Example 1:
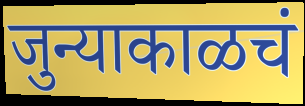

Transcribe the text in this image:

जुन्याकाळचं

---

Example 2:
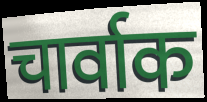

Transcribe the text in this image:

चार्वाक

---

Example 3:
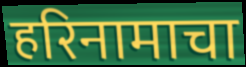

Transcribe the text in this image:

हरिनामाचा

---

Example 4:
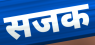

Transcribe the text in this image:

सजक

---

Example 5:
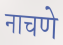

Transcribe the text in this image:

नाचणे